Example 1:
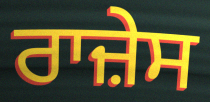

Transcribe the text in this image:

ਰਾਜ਼ੇਸ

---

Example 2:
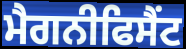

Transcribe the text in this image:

ਮੈਗਨੀਫਿਸੈਂਟ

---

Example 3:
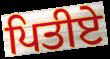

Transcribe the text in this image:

ਪਿਤੀਏ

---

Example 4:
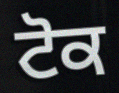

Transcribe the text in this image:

ਟੋਕ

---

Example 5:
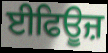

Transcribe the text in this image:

ਈਫਿਊਜ਼